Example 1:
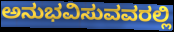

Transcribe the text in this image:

ಅನುಭವಿಸುವವರಲ್ಲಿ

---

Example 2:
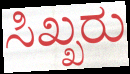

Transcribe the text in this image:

ಸಿಖ್ಖರು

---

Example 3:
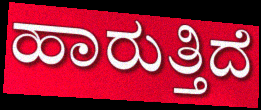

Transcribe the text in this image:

ಹಾರುತ್ತಿದೆ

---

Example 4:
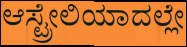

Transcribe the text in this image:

ಆಸ್ಟ್ರೇಲಿಯಾದಲ್ಲೇ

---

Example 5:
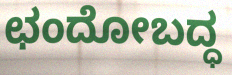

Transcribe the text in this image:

ಛಂದೋಬದ್ಧ